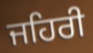
ਜਹਿਰੀ